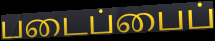
படைப்பைப்